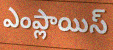
ఎంప్లాయిస్